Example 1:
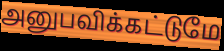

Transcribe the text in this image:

அனுபவிக்கட்டுமே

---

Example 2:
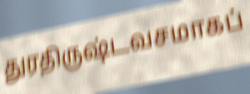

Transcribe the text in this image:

துரதிருஷ்டவசமாகப்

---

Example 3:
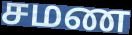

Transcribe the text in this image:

சமண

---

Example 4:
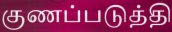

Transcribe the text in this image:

குணப்படுத்தி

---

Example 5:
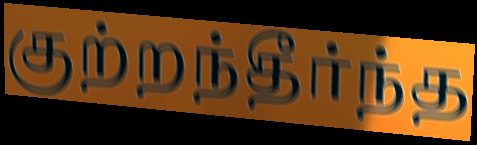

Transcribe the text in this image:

குற்றந்தீர்ந்த